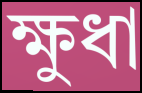
ক্ষুধা